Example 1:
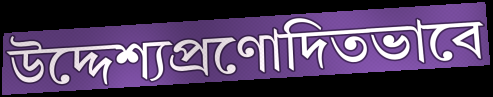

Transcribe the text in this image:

উদ্দেশ্যপ্রণোদিতভাবে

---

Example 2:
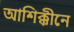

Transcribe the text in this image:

আশিক্কীনে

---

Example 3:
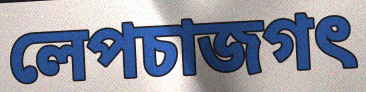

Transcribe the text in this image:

লেপচাজগৎ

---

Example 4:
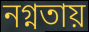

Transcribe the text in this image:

নগ্নতায়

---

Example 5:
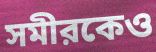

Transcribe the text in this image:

সমীরকেও